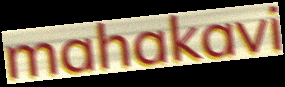
mahakavi